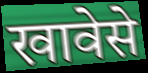
खावेसे